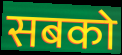
सबको